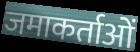
जमाकर्ताओं